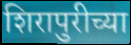
शिरापुरीच्या